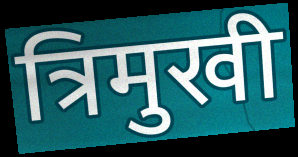
त्रिमुखी